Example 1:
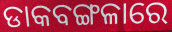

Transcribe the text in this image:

ଡାକବଙ୍ଗଳାରେ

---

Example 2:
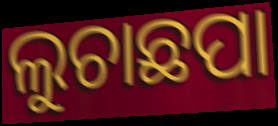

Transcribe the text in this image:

ଲୁଚାଛପା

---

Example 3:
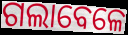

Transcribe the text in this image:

ଗଲାବେଳେ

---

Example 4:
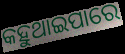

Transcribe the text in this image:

କହୁଥାଇପାରେ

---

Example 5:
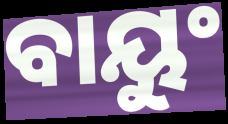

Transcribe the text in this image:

ବାୟୁଂ